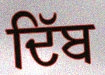
ਦਿੱਬ